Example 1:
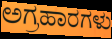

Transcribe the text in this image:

ಅಗ್ರಹಾರಗಳು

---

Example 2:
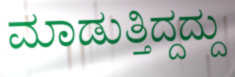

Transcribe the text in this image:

ಮಾಡುತ್ತಿದ್ದದ್ದು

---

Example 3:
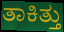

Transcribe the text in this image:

ತಾಕಿತ್ತು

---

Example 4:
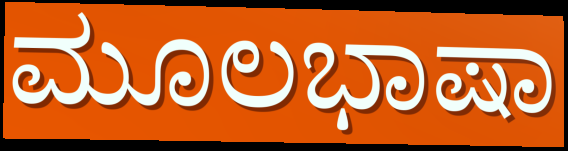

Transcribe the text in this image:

ಮೂಲಭಾಷಾ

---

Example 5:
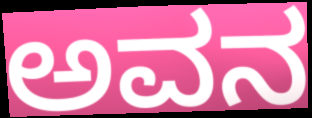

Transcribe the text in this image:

ಅವನ